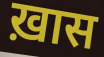
ख़ास